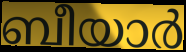
ബീയാർ